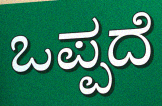
ಒಪ್ಪದೆ